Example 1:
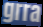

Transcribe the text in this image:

grra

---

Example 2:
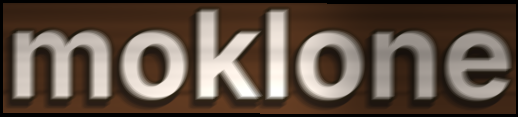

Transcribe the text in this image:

moklone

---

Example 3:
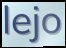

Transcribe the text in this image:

lejo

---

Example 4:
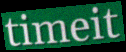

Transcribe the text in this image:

timeit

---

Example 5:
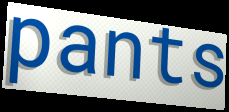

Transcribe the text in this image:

pants